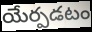
యేర్పడటం